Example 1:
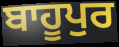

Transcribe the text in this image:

ਬਾਹੂਪੁਰ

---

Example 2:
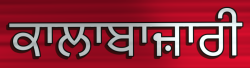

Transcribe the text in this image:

ਕਾਲਾਬਾਜ਼ਾਰੀ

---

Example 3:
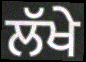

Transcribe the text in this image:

ਲੱਖੇ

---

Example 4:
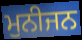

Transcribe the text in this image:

ਮੁਨੀਜਨ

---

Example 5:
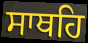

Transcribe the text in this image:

ਸਾਥਹਿ